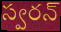
స్వరన్